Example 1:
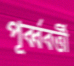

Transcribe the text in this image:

পূর্ব্ববর্ত্তী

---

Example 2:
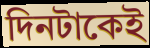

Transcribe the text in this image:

দিনটাকেই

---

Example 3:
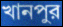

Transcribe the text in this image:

খানপুর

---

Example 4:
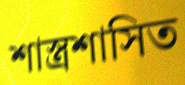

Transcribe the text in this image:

শাস্ত্রশাসিত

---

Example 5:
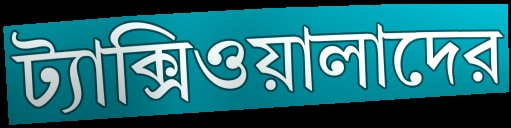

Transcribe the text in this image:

ট্যাক্সিওয়ালাদের